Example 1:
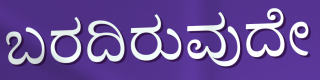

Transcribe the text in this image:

ಬರದಿರುವುದೇ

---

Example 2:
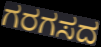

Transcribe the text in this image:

ಗರಗಸದ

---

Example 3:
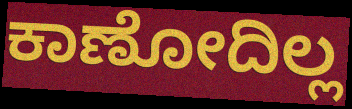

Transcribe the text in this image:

ಕಾಣೋದಿಲ್ಲ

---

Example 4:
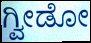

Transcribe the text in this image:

ಗ್ವೀಡೋ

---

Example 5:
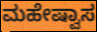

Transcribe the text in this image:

ಮಹೇಷ್ವಾಸ